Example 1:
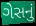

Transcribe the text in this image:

ગેસનું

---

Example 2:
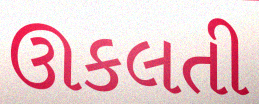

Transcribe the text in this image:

ઊકલતી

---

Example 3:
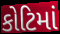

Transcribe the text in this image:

કોટિમાં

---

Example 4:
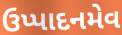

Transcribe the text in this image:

ઉપ્પાદનમેવ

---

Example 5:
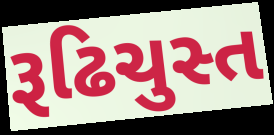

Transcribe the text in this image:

રૂઢિચુસ્ત